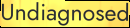
Undiagnosed